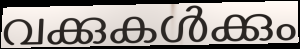
വക്കുകൾക്കും